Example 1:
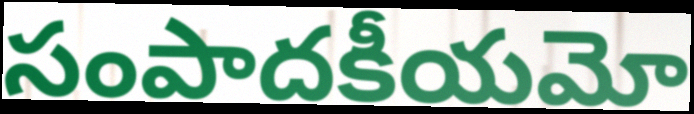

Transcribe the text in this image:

సంపాదకీయమో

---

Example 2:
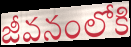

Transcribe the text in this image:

జీవనంలోకి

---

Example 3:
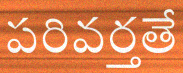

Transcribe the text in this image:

పరివర్తతే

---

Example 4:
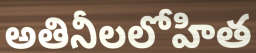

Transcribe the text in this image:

అతినీలలోహిత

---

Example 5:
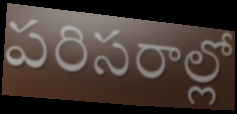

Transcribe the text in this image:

పరిసరాల్లో